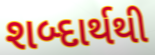
શબ્દાર્થથી